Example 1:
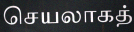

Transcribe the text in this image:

செயலாகத்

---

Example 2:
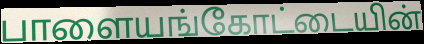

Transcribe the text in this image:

பாளையங்கோட்டையின்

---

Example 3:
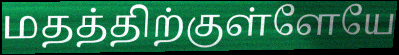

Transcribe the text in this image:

மதத்திற்குள்ளேயே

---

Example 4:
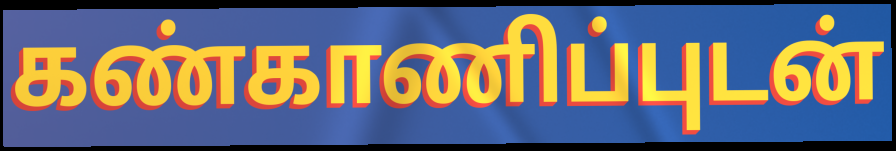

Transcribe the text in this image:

கண்காணிப்புடன்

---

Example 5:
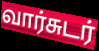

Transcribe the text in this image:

வார்சுடர்